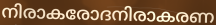
നിരാകരോദനിരാകരണ